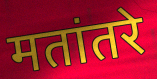
मतांतरे